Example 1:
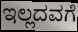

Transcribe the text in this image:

ಇಲ್ಲದವಗೆ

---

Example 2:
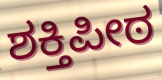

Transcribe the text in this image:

ಶಕ್ತಿಪೀಠ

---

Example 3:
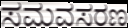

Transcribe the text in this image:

ಸಮವಸರಣ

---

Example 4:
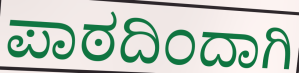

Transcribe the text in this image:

ಪಾಠದಿಂದಾಗಿ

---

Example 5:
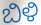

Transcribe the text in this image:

ಬಿಳಿ